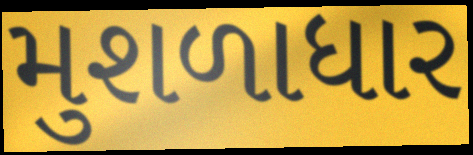
મુશળાધાર